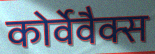
कोर्वेवैक्स